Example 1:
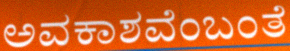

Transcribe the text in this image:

ಅವಕಾಶವೆಂಬಂತೆ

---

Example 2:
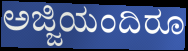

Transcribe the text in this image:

ಅಜ್ಜಿಯಂದಿರೂ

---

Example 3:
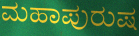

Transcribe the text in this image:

ಮಹಾಪುರುಷ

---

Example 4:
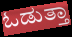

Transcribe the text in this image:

ಓಡುತ್ತಾ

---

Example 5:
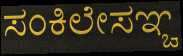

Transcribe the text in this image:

ಸಂಕಿಲೇಸಞ್ಚ